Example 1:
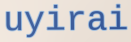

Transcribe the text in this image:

uyirai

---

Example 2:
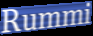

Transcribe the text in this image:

Rummi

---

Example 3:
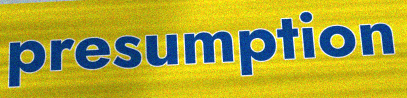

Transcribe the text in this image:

presumption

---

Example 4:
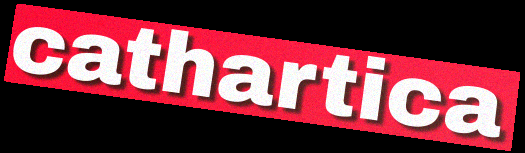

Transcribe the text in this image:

cathartica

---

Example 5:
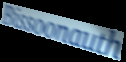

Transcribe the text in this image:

Bissoonauth